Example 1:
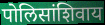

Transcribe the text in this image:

पोलिसांशिवाय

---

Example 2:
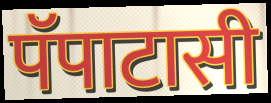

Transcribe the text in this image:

पॅपाटासी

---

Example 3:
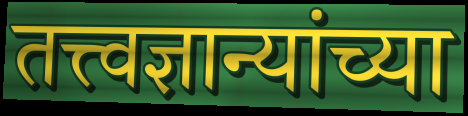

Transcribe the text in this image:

तत्त्वज्ञान्यांच्या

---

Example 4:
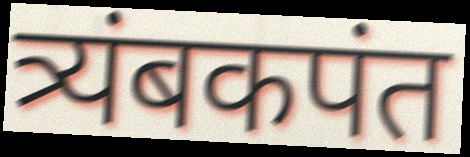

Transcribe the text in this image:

त्र्यंबकपंत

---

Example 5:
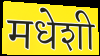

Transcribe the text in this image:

मधेशी